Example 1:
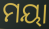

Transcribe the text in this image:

ମୟା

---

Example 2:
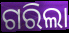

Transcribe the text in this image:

ଗରିଲା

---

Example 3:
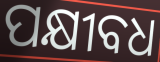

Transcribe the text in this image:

ପକ୍ଷୀବଧ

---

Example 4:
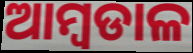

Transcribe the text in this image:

ଆମ୍ବଡାଳ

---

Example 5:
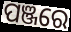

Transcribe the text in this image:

ପଞ୍ଜରେ